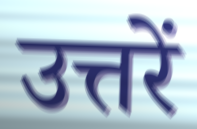
उत्तरें